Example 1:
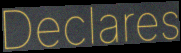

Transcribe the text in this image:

Declares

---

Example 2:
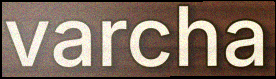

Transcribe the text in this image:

varcha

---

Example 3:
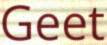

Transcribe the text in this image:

Geet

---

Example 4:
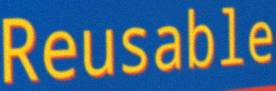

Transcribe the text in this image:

Reusable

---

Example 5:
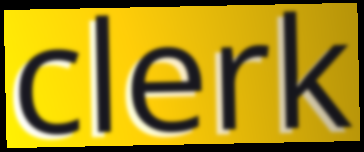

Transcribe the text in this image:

clerk